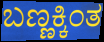
ಬಣ್ಣಕ್ಕಿಂತ